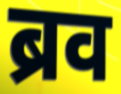
ब्रव